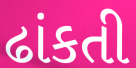
ઢાંકતી